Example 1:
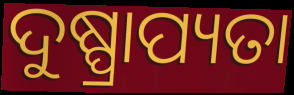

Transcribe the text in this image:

ଦୁଷ୍ପ୍ରାପ୍ୟତା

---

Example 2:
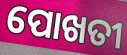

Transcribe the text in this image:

ପୋଖତୀ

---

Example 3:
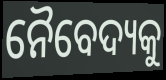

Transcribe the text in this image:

ନୈବେଦ୍ୟକୁ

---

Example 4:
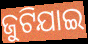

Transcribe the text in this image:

ଜୁଟିଯାଇ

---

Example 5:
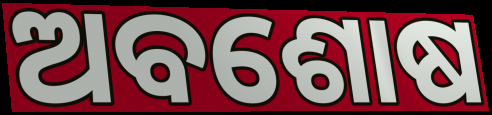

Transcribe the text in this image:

ଅବଶୋଷ